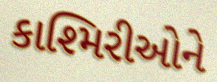
કાશ્મિરીઓને